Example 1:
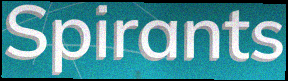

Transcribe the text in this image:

Spirants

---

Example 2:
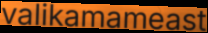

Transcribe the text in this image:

valikamameast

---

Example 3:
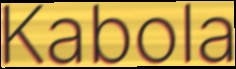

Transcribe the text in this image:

Kabola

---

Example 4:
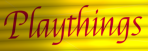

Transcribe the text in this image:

Playthings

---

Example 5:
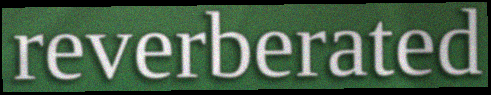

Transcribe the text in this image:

reverberated